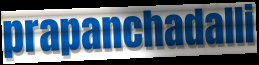
prapanchadalli